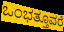
ಒಂಭತ್ತೂವರೆ